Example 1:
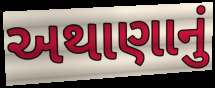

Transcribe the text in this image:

અથાણાનું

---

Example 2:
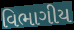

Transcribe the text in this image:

વિભાગીય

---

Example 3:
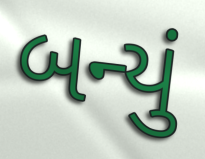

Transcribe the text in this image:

બન્યું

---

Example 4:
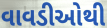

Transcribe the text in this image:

વાવડીઓથી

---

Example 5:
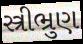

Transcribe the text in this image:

સ્ત્રીભ્રુણ